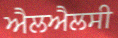
ਐਲਐਲਸੀ